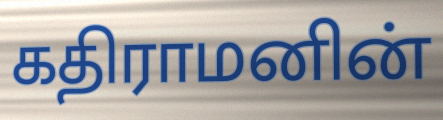
கதிராமனின்